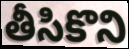
తీసికొని